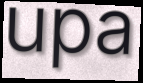
upa